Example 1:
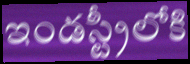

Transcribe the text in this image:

ఇండస్ట్రీలోకి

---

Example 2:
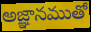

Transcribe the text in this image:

అజ్ఞానముతో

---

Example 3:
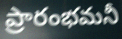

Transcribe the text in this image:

ప్రారంభమనీ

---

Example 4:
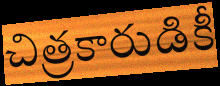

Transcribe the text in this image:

చిత్రకారుడికీ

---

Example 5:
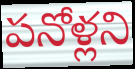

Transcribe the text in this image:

పనోళ్లని